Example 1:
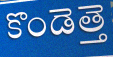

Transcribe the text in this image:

కొండెత్తె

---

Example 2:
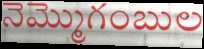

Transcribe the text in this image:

నెమ్మొగంబుల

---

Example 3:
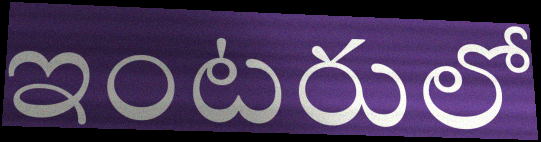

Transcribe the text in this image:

ఇంటరులో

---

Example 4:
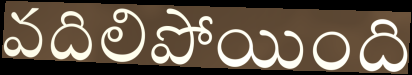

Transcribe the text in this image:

వదిలిపోయింది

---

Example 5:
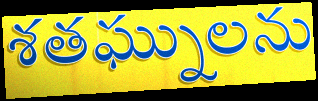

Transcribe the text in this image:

శతఘ్నులను